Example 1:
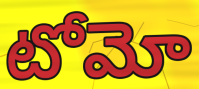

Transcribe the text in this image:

టోమో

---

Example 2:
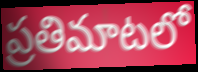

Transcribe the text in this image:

ప్రతిమాటలో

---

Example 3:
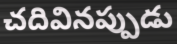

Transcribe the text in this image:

చదివినప్పుడు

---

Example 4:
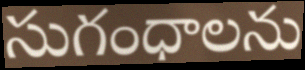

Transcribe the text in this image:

సుగంధాలను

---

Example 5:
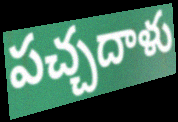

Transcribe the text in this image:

పచ్చదాళు